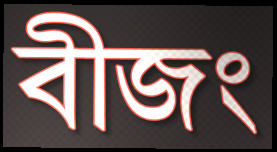
বীজং